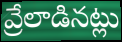
వ్రేలాడినట్లు